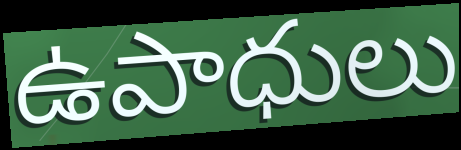
ఉపాధులు